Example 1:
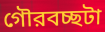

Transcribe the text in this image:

গৌরবচ্ছটা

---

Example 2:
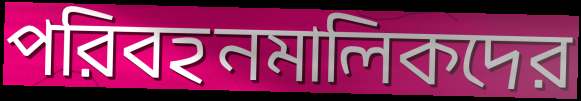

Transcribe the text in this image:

পরিবহনমালিকদের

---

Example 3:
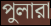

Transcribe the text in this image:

পুলারা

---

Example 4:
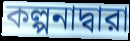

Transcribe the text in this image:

কল্পনাদ্বারা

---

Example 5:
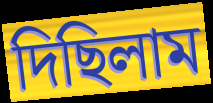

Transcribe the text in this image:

দিছিলাম